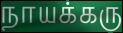
நாயக்கரு